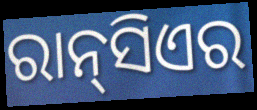
ରାନ୍‌ସିଏର